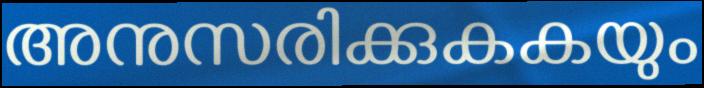
അനുസരിക്കുകകയും